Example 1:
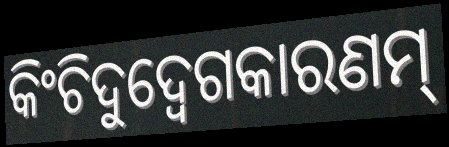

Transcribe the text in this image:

କିଂଚିଦୁଦ୍ବେଗକାରଣମ୍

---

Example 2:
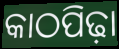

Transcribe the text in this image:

କାଠପିଢ଼ା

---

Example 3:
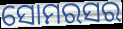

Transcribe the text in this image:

ସୋମରସର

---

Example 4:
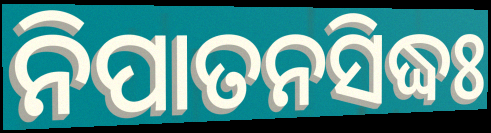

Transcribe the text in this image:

ନିପାତନସିଦ୍ଧଃ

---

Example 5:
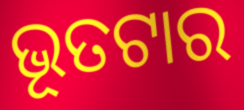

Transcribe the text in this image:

ଭୂତଟାର